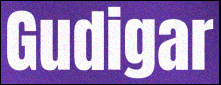
Gudigar